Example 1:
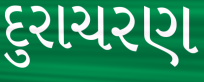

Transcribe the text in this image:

દુરાચરણ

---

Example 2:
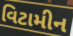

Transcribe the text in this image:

વિટામીન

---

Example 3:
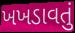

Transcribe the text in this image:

ખખડાવતું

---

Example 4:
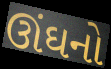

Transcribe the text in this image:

ઊંઘનો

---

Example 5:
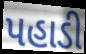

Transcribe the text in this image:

પહાડી